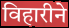
विहारीने